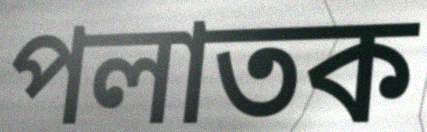
পলাতক